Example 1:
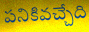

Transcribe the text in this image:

పనికివచ్చేది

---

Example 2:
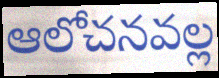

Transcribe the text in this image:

ఆలోచనవల్ల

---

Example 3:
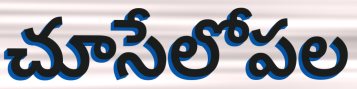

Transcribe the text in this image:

చూసేలోపల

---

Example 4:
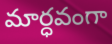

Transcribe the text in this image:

మార్ధవంగా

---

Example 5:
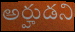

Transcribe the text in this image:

అర్హుడని